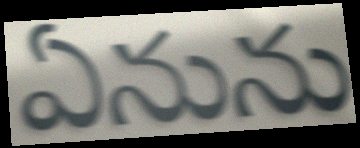
ఏనును